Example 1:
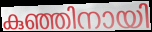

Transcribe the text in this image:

കുഞ്ഞിനായി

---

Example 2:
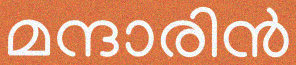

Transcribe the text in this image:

മന്ദാരിൻ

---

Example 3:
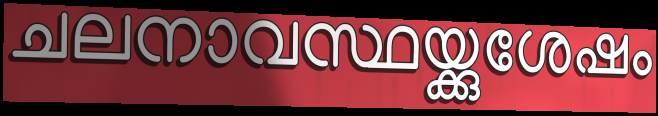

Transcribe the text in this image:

ചലനാവസ്ഥയ്ക്കുശേഷം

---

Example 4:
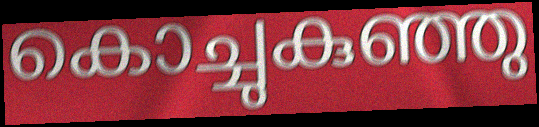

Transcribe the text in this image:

കൊച്ചുകുഞ്ഞു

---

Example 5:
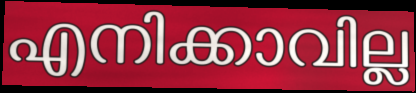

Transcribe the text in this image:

എനിക്കാവില്ല